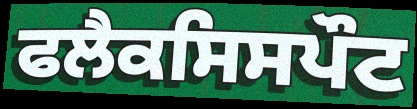
ਫਲੈਕਸਿਸਪੌਟ